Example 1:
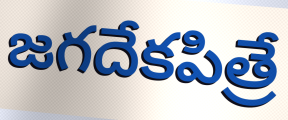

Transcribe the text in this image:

జగదేకపిత్రే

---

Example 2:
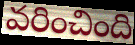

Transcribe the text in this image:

వరించింది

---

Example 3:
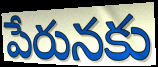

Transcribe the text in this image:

పేరునకు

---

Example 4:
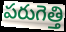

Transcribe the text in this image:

పరుగెత్తి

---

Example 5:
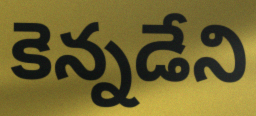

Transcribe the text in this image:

కెన్నడేని